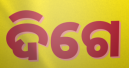
ଦିଗେ